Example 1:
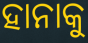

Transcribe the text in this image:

ହାନାକୁ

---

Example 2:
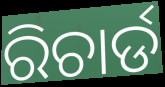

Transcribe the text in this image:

ରିଚାର୍ଡ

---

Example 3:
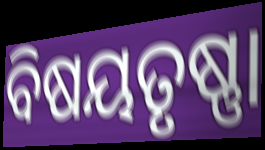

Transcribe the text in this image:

ବିଷୟତୃଷ୍ଣା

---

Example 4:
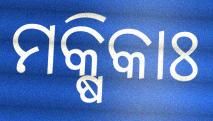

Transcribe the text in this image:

ମକ୍ଷିକାଃ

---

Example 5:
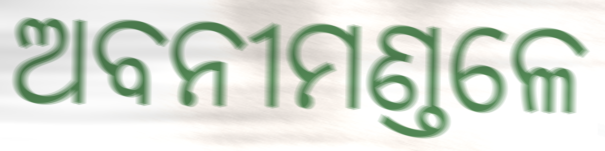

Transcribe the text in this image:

ଅବନୀମଣ୍ଡଳେ